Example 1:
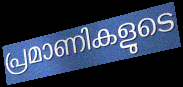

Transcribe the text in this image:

പ്രമാണികളുടെ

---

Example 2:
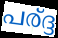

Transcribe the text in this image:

പര്ദ്ദ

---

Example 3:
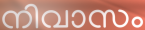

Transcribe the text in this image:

നിവാസം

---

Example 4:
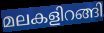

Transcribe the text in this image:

മലകളിറങ്ങി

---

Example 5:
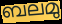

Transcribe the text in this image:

ബലമു